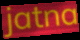
jatna